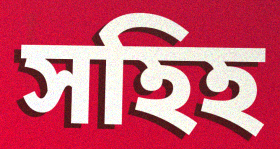
সহিহ